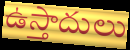
ఉస్తాదులు